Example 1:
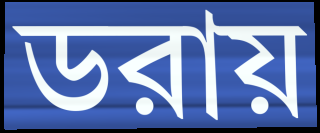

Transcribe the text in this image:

ডরায়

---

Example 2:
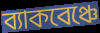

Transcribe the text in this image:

ব্যাকবেঞ্চে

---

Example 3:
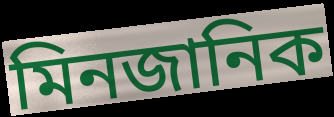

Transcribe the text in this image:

মিনজানিক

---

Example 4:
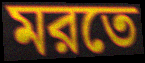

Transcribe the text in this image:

মরতে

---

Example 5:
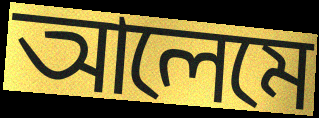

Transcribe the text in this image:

আলেমে